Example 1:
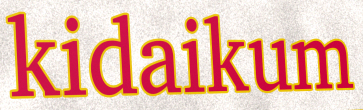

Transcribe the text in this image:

kidaikum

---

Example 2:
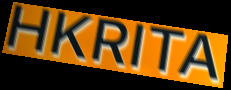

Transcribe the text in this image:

HKRITA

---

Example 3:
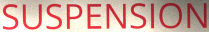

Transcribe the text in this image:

SUSPENSION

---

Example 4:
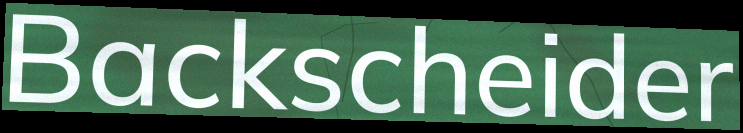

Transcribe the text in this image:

Backscheider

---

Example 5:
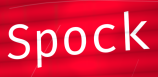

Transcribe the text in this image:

Spock